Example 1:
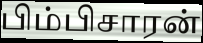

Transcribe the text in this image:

பிம்பிசாரன்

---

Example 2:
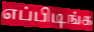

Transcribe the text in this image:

எப்பிடிங்க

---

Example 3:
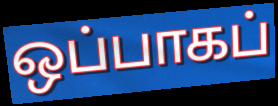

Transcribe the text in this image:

ஒப்பாகப்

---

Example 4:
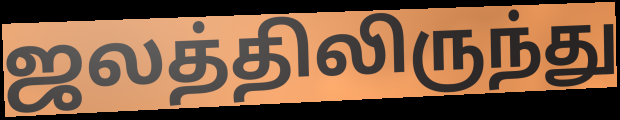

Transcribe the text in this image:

ஜலத்திலிருந்து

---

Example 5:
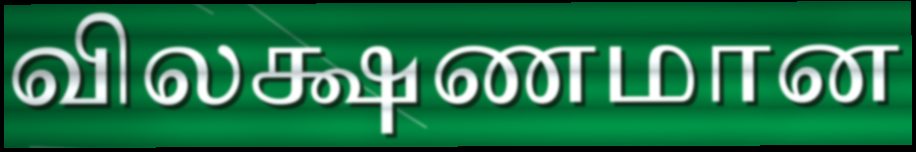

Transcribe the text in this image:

விலக்ஷணமான